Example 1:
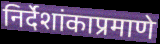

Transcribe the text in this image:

निर्देशांकाप्रमाणे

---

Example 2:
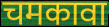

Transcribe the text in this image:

चमकावा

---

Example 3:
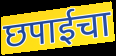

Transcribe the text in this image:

छपाईचा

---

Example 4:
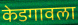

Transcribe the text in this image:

केडगावला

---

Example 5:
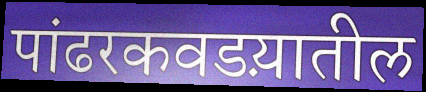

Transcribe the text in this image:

पांढरकवडय़ातील